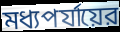
মধ্যপর্যায়ের